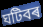
ঘটিবৰ